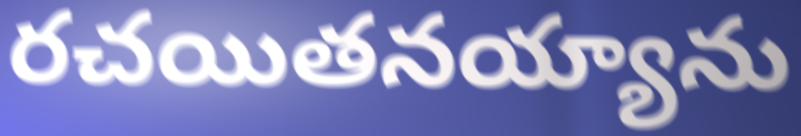
రచయితనయ్యాను